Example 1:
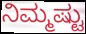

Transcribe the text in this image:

ನಿಮ್ಮಷ್ಟು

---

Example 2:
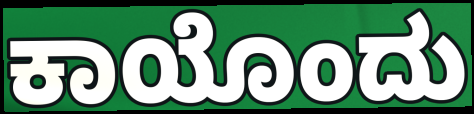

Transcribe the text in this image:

ಕಾಯೊಂದು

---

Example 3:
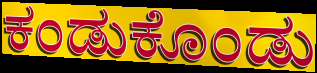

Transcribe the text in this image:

ಕಂಡುಕೊಂಡು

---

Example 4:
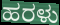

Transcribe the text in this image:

ಹರಳು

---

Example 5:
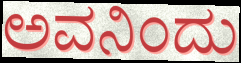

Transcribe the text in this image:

ಅವನಿಂದು